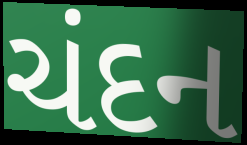
ચંદન